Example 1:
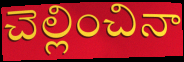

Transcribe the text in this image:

చెల్లించినా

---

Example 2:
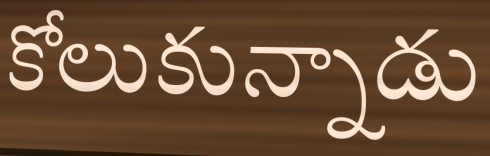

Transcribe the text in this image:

కోలుకున్నాడు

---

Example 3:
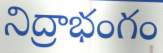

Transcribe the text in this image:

నిద్రాభంగం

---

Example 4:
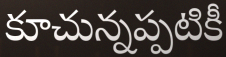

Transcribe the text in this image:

కూచున్నప్పటికీ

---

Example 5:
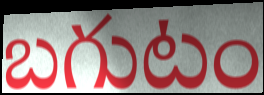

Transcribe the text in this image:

బగుటం